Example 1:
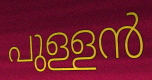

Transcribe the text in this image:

പുള്ളൻ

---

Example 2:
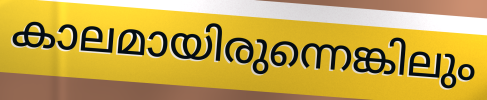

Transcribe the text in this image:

കാലമായിരുന്നെങ്കിലും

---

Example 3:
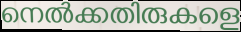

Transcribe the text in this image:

നെൽക്കതിരുകളെ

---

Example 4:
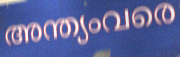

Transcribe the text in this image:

അന്ത്യംവരെ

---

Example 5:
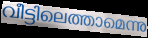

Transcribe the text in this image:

വീട്ടിലെത്താമെന്നു